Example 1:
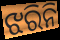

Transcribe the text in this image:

ଝରିନି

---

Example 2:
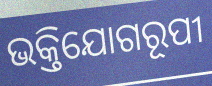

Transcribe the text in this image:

ଭକ୍ତିଯୋଗରୂପୀ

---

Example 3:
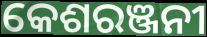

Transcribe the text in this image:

କେଶରଞ୍ଜନୀ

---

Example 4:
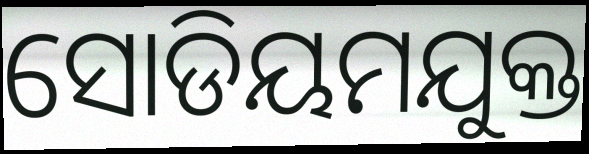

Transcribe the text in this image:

ସୋଡିୟମଯୁକ୍ତ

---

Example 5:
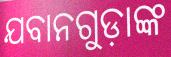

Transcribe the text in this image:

ଯବାନଗୁଡ଼ାଙ୍କ